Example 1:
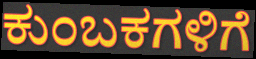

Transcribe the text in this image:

ಕುಂಬಕಗಳಿಗೆ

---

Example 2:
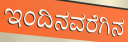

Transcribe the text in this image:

ಇಂದಿನವರೆಗಿನ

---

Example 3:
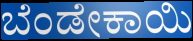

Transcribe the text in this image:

ಬೆಂಡೇಕಾಯಿ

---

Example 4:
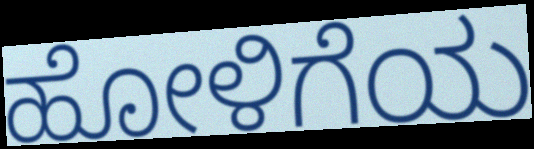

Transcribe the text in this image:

ಹೋಳಿಗೆಯ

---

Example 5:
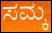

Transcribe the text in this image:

ಸಮ್ಕ